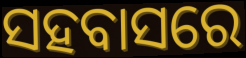
ସହବାସରେ